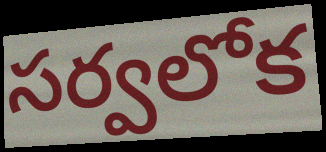
సర్వలోక